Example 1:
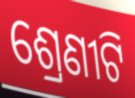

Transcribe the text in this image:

ଶ୍ରେଣୀଟି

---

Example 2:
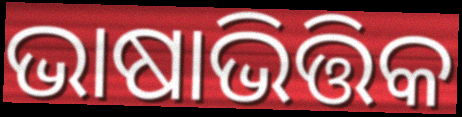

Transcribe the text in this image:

ଭାଷାଭିତ୍ତିକ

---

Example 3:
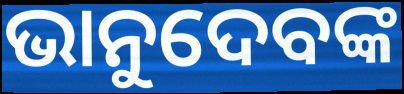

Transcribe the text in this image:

ଭାନୁଦେବଙ୍କ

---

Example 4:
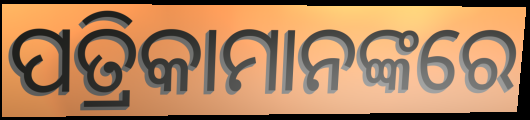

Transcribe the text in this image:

ପତ୍ରିକାମାନଙ୍କରେ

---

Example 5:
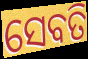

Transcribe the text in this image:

ସେବତି